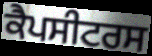
ਕੈਪਸੀਟਰਸ